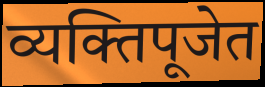
व्यक्तिपूजेत